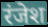
रंजेश